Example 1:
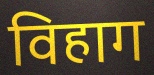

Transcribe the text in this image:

विहाग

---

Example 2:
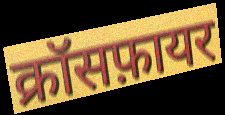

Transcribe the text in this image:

क्रॉसफ़ायर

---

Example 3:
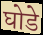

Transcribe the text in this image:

घोडे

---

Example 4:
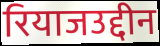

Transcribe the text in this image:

रियाजउद्दीन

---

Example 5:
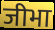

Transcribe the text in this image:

जीभा